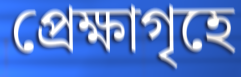
প্রেক্ষাগৃহে